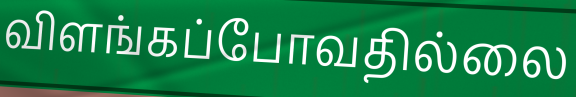
விளங்கப்போவதில்லை